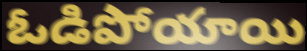
ఓడిపోయాయి